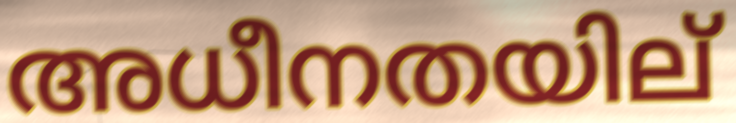
അധീനതയില്